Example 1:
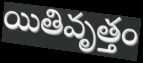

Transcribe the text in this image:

యితివృత్తం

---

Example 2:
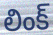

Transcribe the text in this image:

లింక్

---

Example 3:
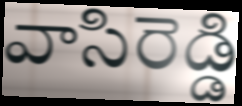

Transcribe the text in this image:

వాసిరెడ్డి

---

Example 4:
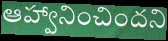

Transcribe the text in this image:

ఆహ్వానించిందని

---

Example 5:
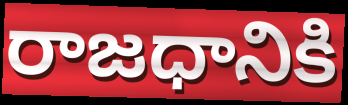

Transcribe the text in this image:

రాజధానికి